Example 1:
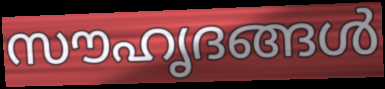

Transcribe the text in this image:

സൗഹൃദങ്ങൾ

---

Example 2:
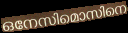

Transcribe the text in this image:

ഒനേസിമൊസിനെ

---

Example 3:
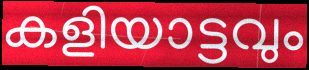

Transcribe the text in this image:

കളിയാട്ടവും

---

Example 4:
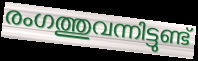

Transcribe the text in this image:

രംഗത്തുവന്നിട്ടുണ്ട്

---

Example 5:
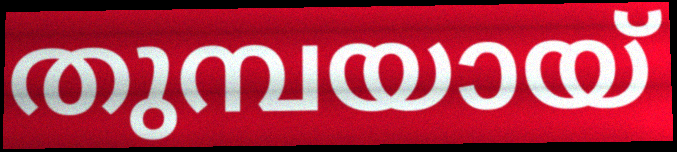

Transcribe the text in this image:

തുമ്പയായ്